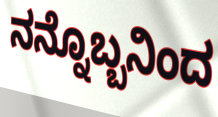
ನನ್ನೊಬ್ಬನಿಂದ